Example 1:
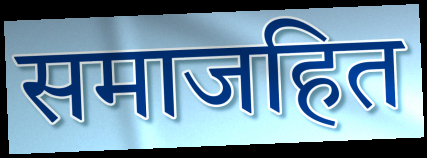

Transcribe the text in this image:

समाजहित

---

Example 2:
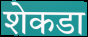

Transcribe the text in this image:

शेकडा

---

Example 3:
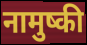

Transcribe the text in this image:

नामुष्की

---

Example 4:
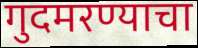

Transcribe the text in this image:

गुदमरण्याचा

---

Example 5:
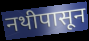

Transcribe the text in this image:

नथीपासून